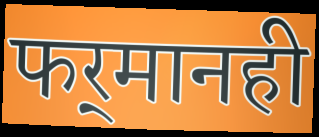
फर्मानही